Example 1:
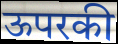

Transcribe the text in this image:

ऊपरकी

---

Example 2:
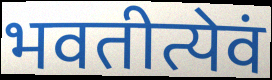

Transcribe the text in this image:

भवतीत्येवं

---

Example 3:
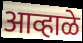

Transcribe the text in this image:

आव्हाळे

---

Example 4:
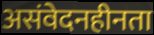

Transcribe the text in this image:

असंवेदनहीनता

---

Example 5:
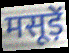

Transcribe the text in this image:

मसूड़ें